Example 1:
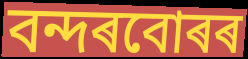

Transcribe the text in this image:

বন্দৰবোৰৰ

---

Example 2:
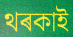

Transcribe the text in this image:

থৰকাই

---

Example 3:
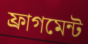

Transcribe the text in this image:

ফ্ৰাগমেন্ট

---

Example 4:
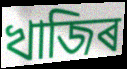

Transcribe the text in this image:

খাজিৰ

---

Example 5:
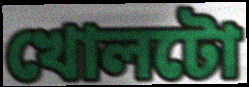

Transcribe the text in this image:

খোলটো